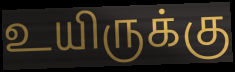
உயிருக்கு